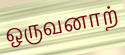
ஒருவனாற்